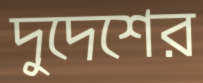
দুদেশের